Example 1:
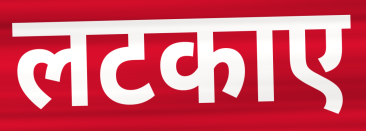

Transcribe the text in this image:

लटकाए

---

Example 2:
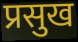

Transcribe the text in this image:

प्रसुख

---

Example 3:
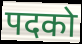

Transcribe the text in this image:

पदको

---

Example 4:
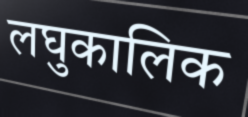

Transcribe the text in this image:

लघुकालिक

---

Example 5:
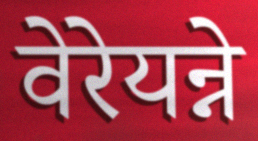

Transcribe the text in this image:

वेरेयन्ने